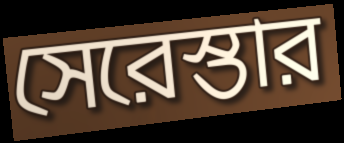
সেরেস্তার